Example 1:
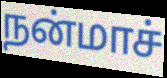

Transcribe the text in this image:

நன்மாச்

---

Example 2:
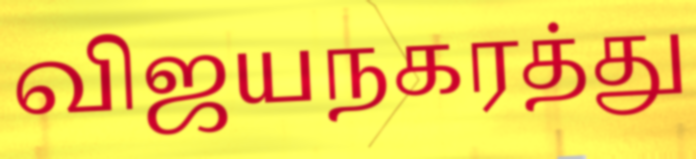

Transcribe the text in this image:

விஜயநகரத்து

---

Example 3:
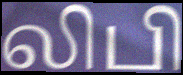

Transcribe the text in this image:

லிபி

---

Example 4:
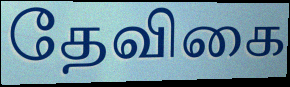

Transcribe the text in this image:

தேவிகை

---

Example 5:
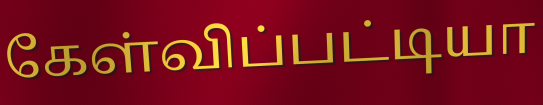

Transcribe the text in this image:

கேள்விப்பட்டியா